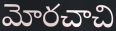
మోరచాచి